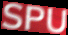
SPU